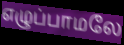
எழுப்பாமலே